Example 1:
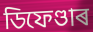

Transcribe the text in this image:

ডিফেণ্ডাৰ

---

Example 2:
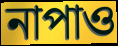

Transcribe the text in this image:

নাপাও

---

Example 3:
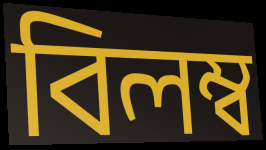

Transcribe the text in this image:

বিলম্ব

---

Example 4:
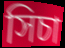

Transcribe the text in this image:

সিচা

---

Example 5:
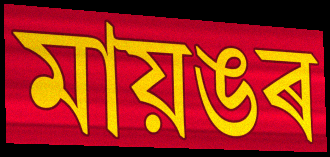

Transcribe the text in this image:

মায়ঙৰ